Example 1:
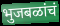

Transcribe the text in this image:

भुजबळांचं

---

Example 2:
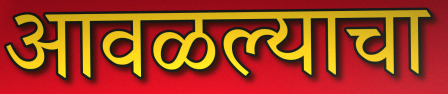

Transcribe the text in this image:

आवळल्याचा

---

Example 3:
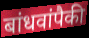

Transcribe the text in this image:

बांधवांपैकी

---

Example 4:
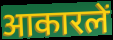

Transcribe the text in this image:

आकारलें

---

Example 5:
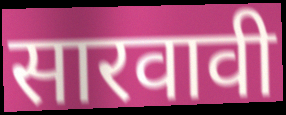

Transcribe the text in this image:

सारवावी